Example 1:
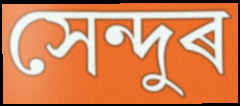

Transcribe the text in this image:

সেন্দুৰ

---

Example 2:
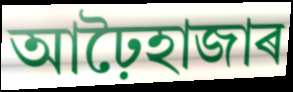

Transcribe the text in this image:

আঢ়ৈহাজাৰ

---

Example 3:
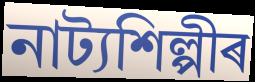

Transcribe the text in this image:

নাট্যশিল্পীৰ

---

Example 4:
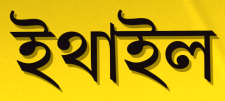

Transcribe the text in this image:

ইথাইল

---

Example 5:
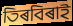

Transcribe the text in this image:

তিৰবিৰাই